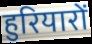
हुरियारों